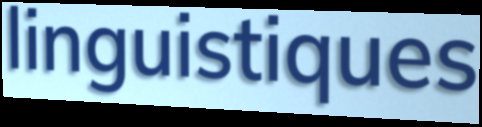
linguistiques